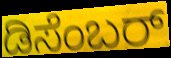
ಡಿಸೆಂಬರ್